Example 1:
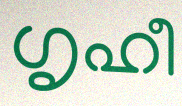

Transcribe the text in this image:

ഗൃഹീ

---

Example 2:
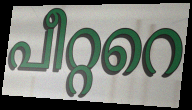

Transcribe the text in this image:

പീറ്ററെ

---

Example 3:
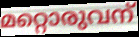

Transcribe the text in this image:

മറ്റൊരുവന്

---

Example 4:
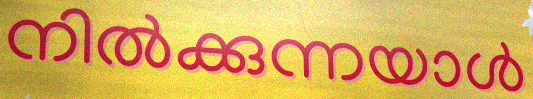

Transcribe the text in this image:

നിൽക്കുന്നയാൾ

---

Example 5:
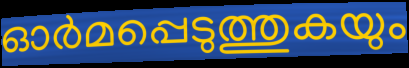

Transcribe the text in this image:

ഓർമപ്പെടുത്തുകയും